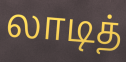
லாடித்